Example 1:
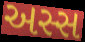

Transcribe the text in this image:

અસ્સ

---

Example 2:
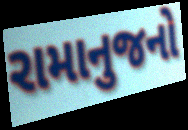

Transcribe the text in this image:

રામાનુજનો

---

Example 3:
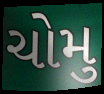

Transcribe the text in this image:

ચોમુ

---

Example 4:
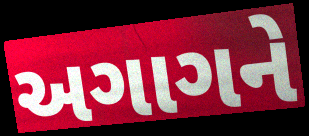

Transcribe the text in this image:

અગાગને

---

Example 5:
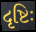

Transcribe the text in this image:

દૃષ્ટિઃ